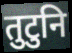
तुटुनि